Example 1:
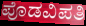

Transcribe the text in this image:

ಪೊಡವಿಪತಿ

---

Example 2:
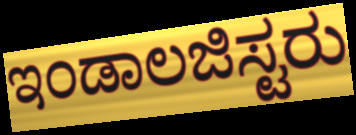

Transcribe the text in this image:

ಇಂಡಾಲಜಿಸ್ಟರು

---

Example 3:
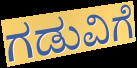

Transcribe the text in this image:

ಗಡುವಿಗೆ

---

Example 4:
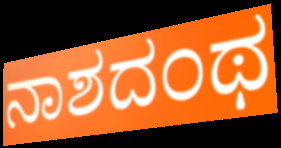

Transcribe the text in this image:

ನಾಶದಂಥ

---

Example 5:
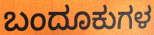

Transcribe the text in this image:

ಬಂದೂಕುಗಳ